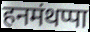
हनमंथप्पा